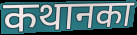
कथानका